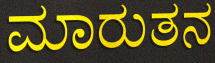
ಮಾರುತನ